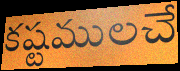
కష్టములచే